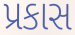
પ્રકાસ